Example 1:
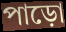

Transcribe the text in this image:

পাড়ো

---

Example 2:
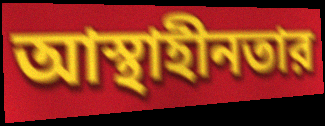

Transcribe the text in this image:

আস্থাহীনতার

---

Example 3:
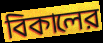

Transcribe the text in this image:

বিকালের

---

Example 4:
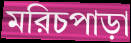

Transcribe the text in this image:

মরিচপাড়া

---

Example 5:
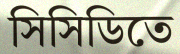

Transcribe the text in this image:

সিসিডিতে